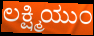
ಲಕ್ಷ್ಮಿಯುಂ